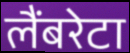
लैंबरेटा